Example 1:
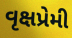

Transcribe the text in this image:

વૃક્ષપ્રેમી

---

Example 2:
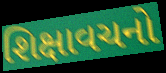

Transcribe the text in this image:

શિક્ષાવચનો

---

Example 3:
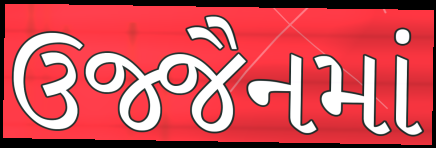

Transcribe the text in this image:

ઉજ્જૈનમાં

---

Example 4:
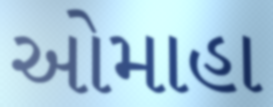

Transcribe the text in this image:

ઓમાહા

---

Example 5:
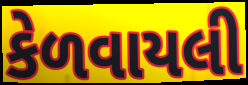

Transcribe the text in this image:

કેળવાયલી